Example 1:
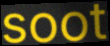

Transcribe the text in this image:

soot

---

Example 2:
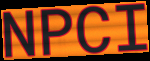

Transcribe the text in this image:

NPCI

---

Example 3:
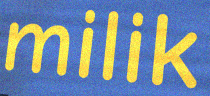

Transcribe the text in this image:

milik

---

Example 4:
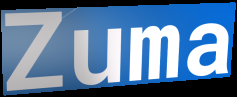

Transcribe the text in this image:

Zuma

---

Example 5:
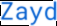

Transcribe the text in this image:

Zayd